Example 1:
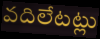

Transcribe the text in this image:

వదిలేటట్లు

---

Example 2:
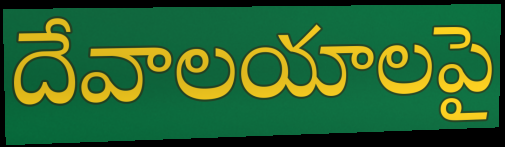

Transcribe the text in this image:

దేవాలయాలపై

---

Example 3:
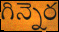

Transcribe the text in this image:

గిన్నెర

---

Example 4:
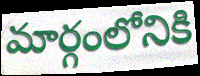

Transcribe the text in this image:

మార్గంలోనికి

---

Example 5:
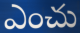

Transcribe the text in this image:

ఎంచు